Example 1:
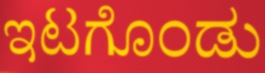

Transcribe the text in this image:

ಇಟಗೊಂಡು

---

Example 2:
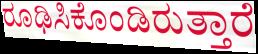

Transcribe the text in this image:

ರೂಢಿಸಿಕೊಂಡಿರುತ್ತಾರೆ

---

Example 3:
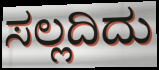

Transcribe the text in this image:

ಸಲ್ಲದಿದು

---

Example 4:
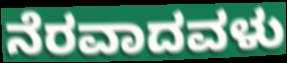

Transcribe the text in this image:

ನೆರವಾದವಳು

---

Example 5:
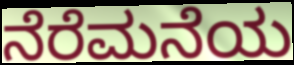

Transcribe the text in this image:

ನೆರೆಮನೆಯ